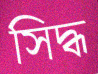
সিদ্ধ